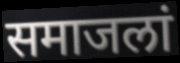
समाजलां